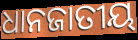
ଧାନଜାତୀୟ